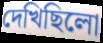
দেখিছিলো